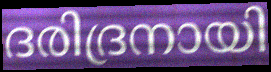
ദരിദ്രനായി